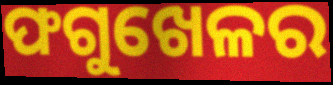
ଫଗୁଖେଳର